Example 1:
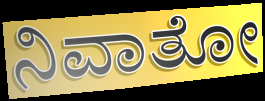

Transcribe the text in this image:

ನಿವಾತೋ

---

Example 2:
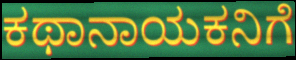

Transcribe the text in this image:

ಕಥಾನಾಯಕನಿಗೆ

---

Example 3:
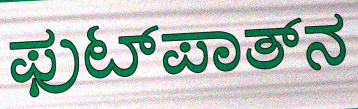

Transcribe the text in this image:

ಫುಟ್‌ಪಾತ್‌ನ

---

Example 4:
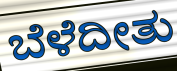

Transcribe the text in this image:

ಬೆಳೆದೀತು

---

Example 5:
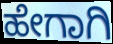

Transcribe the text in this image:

ಹೇಗಾಗಿ